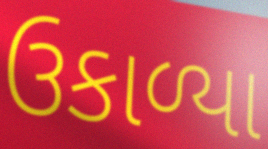
ઉકાળ્યા